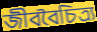
জীববৈচিত্র্য